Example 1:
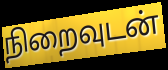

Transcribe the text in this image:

நிறைவுடன்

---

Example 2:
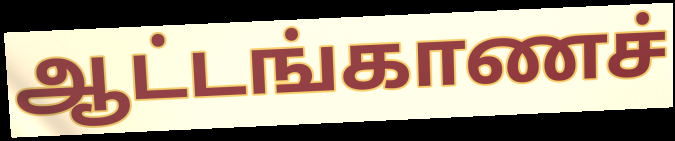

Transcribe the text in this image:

ஆட்டங்காணச்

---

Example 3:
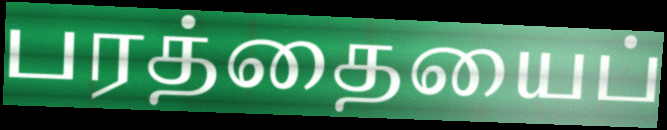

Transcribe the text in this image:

பரத்தையைப்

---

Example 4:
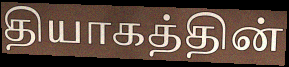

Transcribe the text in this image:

தியாகத்தின்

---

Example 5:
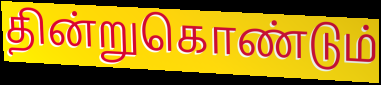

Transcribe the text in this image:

தின்றுகொண்டும்